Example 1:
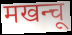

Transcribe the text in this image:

मखन्चू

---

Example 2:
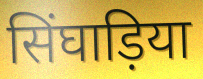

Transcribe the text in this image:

सिंघाड़िया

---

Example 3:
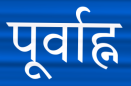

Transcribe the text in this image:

पूर्वाह्न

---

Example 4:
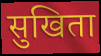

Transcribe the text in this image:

सुखिता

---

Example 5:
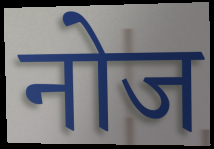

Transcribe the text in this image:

नोज